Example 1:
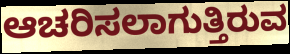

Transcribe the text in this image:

ಆಚರಿಸಲಾಗುತ್ತಿರುವ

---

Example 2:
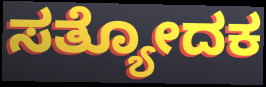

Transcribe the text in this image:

ಸತ್ಯೋದಕ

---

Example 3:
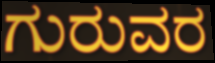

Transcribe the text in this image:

ಗುರುವರ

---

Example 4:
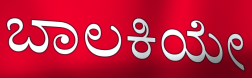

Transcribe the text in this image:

ಬಾಲಕಿಯೇ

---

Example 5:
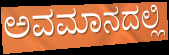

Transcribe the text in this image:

ಅವಮಾನದಲ್ಲಿ